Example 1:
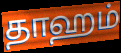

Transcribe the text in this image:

தாஹம்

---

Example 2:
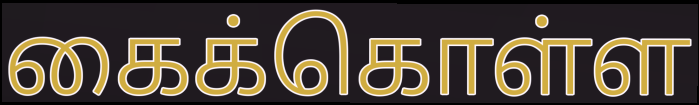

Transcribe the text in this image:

கைக்கொள்ள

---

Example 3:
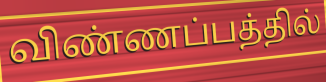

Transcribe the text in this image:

விண்ணப்பத்தில்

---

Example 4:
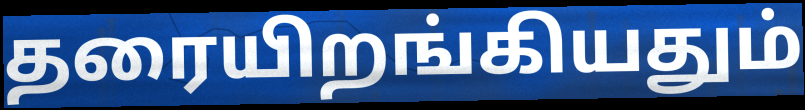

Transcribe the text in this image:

தரையிறங்கியதும்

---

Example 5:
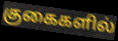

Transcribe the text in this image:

குகைகளில்